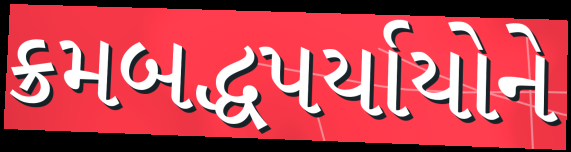
ક્રમબદ્ધપર્યાયોને